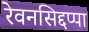
रेवनसिद्दप्पा